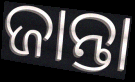
ଜାନ୍ତା